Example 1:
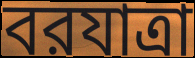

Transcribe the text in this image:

বরযাত্রা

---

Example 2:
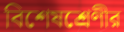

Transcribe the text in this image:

বিশেষশ্রেণীর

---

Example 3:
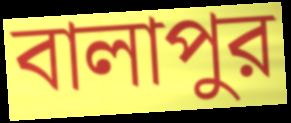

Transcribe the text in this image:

বালাপুর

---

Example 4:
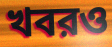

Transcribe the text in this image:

খবরও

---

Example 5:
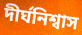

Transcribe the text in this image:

দীর্ঘনিশ্বাস